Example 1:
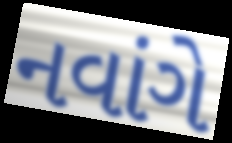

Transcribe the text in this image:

નવાંગે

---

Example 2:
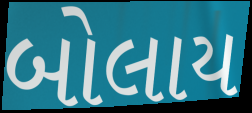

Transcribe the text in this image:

બોલાય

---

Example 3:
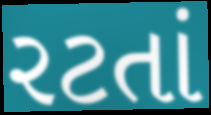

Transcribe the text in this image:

રટતાં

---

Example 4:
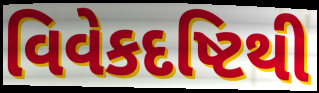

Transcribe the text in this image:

વિવેકદષ્ટિથી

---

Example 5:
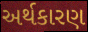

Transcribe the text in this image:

અર્થકારણ